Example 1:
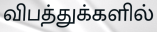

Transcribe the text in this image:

விபத்துக்களில்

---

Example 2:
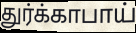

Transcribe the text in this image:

துர்க்காபாய்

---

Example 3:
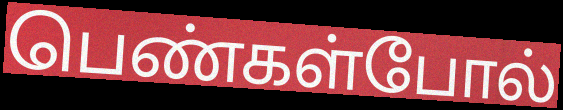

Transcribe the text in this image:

பெண்கள்போல்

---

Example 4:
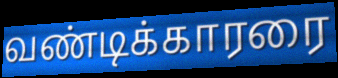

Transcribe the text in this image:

வண்டிக்காரரை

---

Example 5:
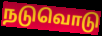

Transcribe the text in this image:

நடுவொடு